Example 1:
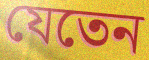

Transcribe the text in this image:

যেতেন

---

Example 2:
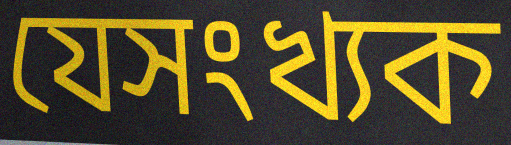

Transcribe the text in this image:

যেসংখ্যক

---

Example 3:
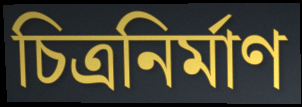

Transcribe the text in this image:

চিত্রনির্মাণ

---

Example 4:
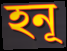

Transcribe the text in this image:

হনূ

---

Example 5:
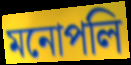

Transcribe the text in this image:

মনোপলি